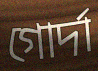
গোর্দা